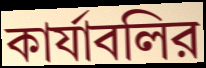
কার্যাবলির